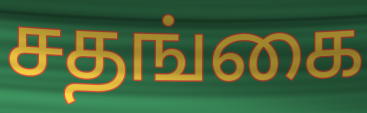
சதங்கை